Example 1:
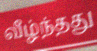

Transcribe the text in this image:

வீழ்ந்தது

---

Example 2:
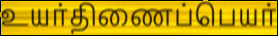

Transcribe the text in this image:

உயர்திணைப்பெயர்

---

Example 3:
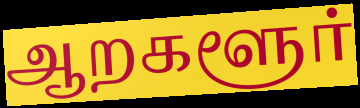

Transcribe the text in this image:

ஆறகளூர்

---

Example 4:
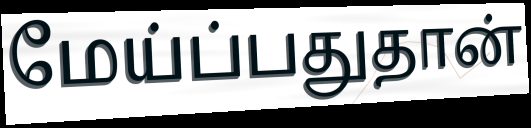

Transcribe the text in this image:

மேய்ப்பதுதான்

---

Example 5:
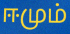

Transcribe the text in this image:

ஈமும்